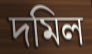
দমিল